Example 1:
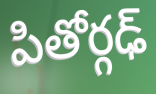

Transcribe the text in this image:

పితోర్గఢ్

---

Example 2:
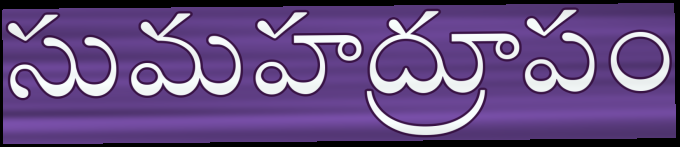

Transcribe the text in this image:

సుమహద్రూపం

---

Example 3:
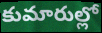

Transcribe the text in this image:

కుమారుల్లో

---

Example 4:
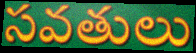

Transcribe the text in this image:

సవతులు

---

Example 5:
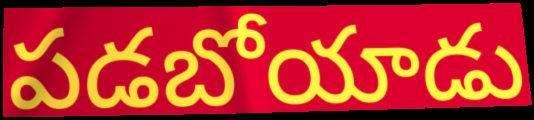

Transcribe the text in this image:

పడబోయాడు